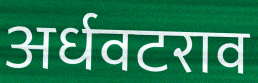
अर्धवटराव